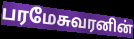
பரமேசுவரனின்